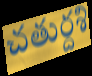
చతుర్దశి